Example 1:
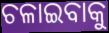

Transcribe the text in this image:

ଚଳାଇବାକୁ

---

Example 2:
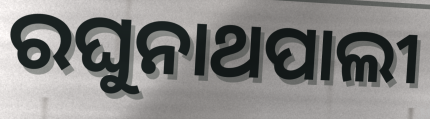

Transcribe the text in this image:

ରଘୁନାଥପାଲୀ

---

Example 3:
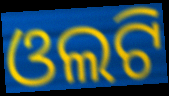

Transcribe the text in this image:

ଓଲଟି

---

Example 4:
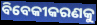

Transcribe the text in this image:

ବିବେକୀକରଣକୁ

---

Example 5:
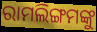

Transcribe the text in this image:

ରାମଲିଙ୍ଗମଙ୍କୁ